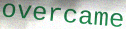
overcame